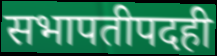
सभापतीपदही